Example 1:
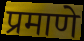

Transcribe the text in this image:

प्रमाणे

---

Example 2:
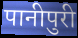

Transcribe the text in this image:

पानीपुरी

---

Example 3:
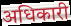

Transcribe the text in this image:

अधिकारी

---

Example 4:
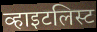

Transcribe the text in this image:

व्हाइटलिस्ट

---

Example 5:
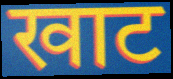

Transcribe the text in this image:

खाट